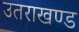
उतराखण्ड